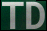
TD